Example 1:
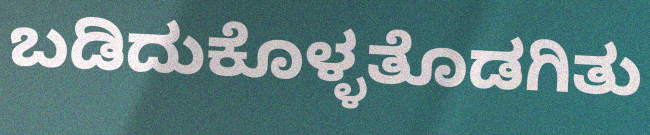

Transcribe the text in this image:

ಬಡಿದುಕೊಳ್ಳತೊಡಗಿತು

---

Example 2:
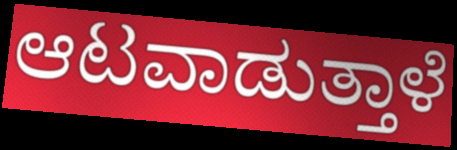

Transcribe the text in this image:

ಆಟವಾಡುತ್ತಾಳೆ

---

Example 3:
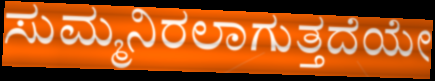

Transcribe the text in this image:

ಸುಮ್ಮನಿರಲಾಗುತ್ತದೆಯೇ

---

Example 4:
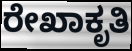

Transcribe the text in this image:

ರೇಖಾಕೃತಿ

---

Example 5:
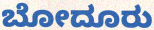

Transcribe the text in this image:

ಬೋದೂರು